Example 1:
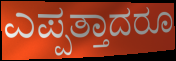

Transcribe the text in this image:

ಎಪ್ಪತ್ತಾದರೂ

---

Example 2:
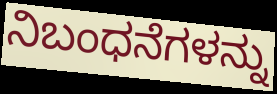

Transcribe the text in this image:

ನಿಬಂಧನೆಗಳನ್ನು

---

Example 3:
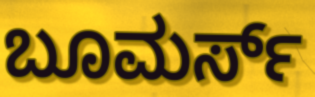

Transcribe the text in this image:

ಬೂಮರ್ಸ್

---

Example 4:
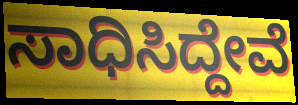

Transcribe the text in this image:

ಸಾಧಿಸಿದ್ದೇವೆ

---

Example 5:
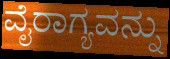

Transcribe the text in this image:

ವೈರಾಗ್ಯವನ್ನು